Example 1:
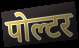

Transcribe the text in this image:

पोल्टर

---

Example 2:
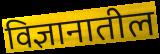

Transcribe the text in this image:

विज्ञानातील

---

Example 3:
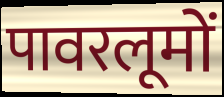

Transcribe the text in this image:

पावरलूमों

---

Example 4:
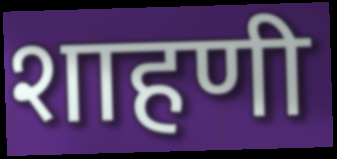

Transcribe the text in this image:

शाहणी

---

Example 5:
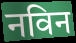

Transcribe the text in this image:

नविन